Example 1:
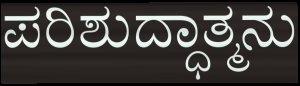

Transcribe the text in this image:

ಪರಿಶುದ್ಧಾತ್ಮನು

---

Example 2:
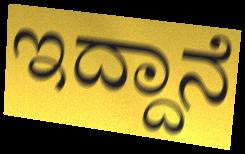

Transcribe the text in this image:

ಇದ್ದಾನೆ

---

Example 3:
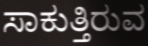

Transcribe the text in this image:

ಸಾಕುತ್ತಿರುವ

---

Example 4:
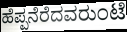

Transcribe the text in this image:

ಹೆಪ್ಪನೆರೆದವರುಂಟೆ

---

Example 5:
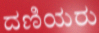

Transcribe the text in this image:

ದಣಿಯರು